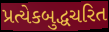
પ્રત્યેકબુદ્ધચરિત